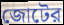
জোটের